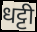
धट्टी